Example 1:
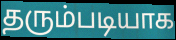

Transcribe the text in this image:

தரும்படியாக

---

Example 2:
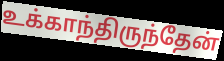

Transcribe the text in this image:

உக்காந்திருந்தேன்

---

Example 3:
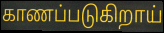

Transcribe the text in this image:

காணப்படுகிறாய்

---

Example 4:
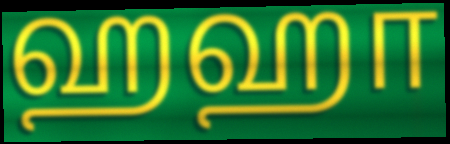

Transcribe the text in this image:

ஹஹா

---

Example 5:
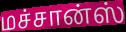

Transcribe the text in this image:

மச்சான்ஸ்